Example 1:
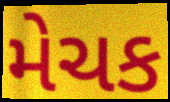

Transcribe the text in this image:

મેચક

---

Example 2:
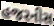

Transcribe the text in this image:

હજરનીસ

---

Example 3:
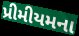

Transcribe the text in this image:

પ્રીમીયમના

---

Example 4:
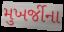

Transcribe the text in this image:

મુખર્જીના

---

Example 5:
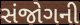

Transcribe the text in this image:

સંજોગની